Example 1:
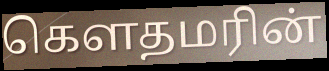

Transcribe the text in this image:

கௌதமரின்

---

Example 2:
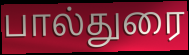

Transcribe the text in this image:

பால்துரை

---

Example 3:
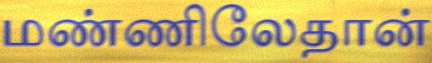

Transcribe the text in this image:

மண்ணிலேதான்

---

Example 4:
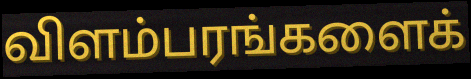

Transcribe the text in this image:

விளம்பரங்களைக்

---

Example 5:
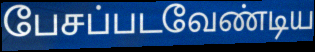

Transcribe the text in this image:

பேசப்படவேண்டிய